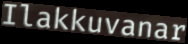
Ilakkuvanar